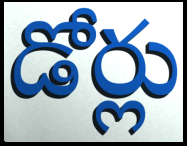
డోర్లు